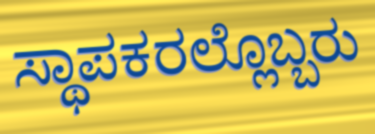
ಸ್ಥಾಪಕರಲ್ಲೊಬ್ಬರು